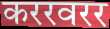
कररवरर